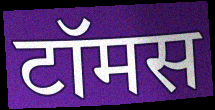
टॉमस